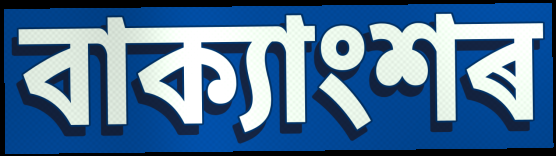
বাক্যাংশৰ